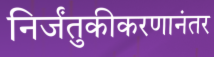
निर्जंतुकीकरणानंतर